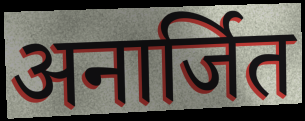
अनार्जित